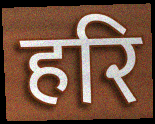
हरि